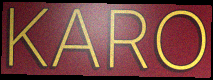
KARO